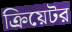
ক্রিয়েটর